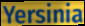
Yersinia